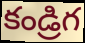
కండ్రిగ